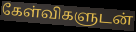
கேள்விகளுடன்